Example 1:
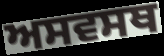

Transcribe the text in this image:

ਅਸਵਸਥ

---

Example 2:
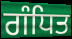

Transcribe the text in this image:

ਗੰਧਿਤ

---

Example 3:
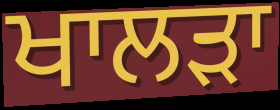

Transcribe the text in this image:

ਖਾਲੜਾ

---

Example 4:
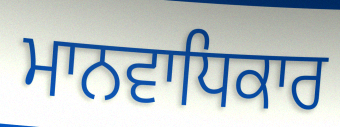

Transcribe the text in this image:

ਮਾਨਵਾਧਿਕਾਰ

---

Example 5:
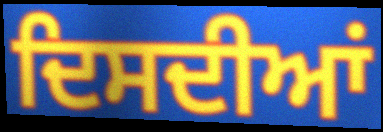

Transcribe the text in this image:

ਦਿਸਦੀਆਂ